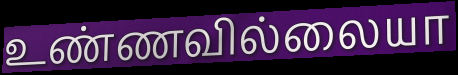
உண்ணவில்லையா